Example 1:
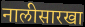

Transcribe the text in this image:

नालीसारखा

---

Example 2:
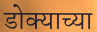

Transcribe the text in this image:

डोक्याच्या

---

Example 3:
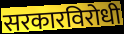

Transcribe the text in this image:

सरकारविरोधी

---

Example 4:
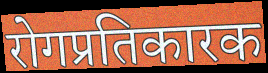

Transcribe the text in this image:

रोगप्रतिकारक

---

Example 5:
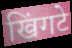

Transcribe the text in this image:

खिंगटे